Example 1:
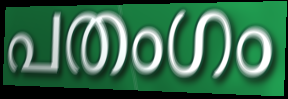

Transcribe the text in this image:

പതംഗം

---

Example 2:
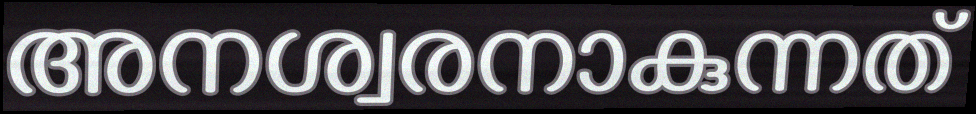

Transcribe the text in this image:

അനശ്വരനാകുന്നത്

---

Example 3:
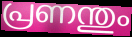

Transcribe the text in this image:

പ്രണന്തും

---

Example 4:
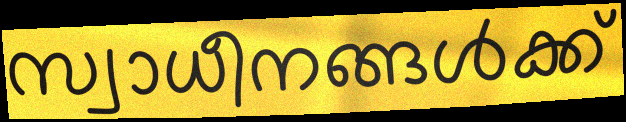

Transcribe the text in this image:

സ്വാധീനങ്ങൾക്ക്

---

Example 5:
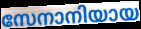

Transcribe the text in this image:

സേനാനിയായ